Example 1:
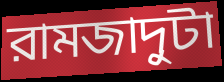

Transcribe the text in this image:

রামজাদুটা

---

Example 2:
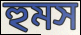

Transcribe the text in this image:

হুমস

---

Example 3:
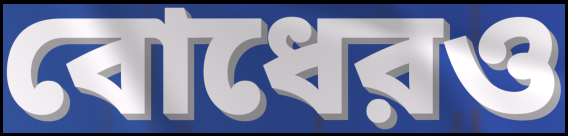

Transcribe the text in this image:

বোধেরও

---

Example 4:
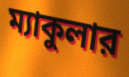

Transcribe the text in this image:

ম্যাকুলার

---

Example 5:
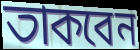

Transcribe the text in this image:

তাকবেন